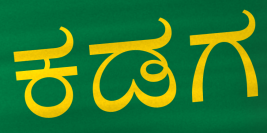
ಕಡಗ